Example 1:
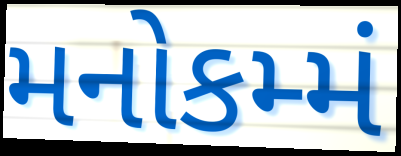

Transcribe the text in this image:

મનોકમ્મં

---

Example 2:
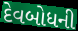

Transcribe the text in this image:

દેવબોધની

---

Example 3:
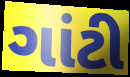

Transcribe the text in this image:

ગાંટી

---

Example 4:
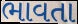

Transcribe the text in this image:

ભાવતા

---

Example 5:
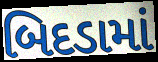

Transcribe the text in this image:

બિદડામાં